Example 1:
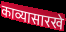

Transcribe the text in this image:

काव्यासारखे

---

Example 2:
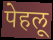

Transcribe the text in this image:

पेहलू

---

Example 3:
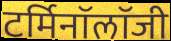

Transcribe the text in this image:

टर्मिनॉलॉजी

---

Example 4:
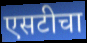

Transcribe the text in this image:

एसटीचा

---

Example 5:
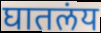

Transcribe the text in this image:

घातलंय